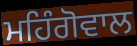
ਮਹਿੰਗੋਵਾਲ